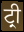
ਟ੍ਰੀ